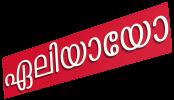
ഏലിയായോ